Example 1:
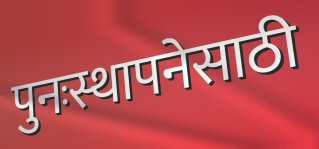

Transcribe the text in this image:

पुनःस्थापनेसाठी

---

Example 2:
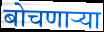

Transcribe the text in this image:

बोचणाऱ्या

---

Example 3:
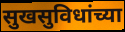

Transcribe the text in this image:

सुखसुविधांच्या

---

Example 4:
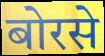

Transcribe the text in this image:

बोरसे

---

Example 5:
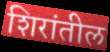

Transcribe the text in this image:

शिरांतील